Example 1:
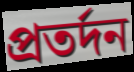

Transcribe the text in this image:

প্রতর্দন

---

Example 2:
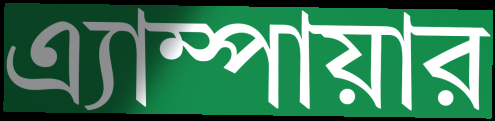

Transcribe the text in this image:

এ্যাম্পায়ার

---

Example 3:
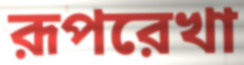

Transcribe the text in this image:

রূপরেখা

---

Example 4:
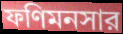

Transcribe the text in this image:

ফণিমনসার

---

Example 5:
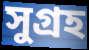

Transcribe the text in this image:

সুগ্রহ